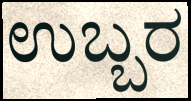
ಉಬ್ಬರ